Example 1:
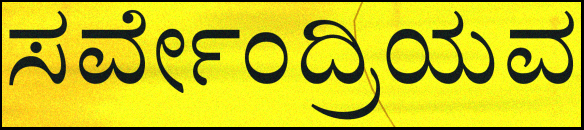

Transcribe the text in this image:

ಸರ್ವೇಂದ್ರಿಯವ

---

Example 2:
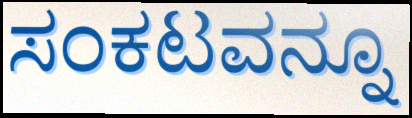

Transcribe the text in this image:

ಸಂಕಟವನ್ನೂ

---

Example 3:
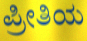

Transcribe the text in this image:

ಪ್ರೀತಿಯ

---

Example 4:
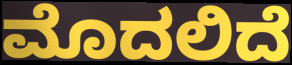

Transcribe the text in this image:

ಮೊದಲಿದೆ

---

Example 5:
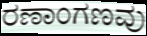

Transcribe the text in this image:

ರಣಾಂಗಣವು